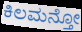
ಕಿಲಮನ್ತೋ